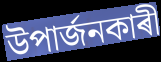
উপাৰ্জনকাৰী